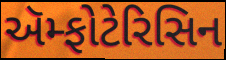
ઍમ્ફોટેરિસિન